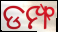
ଡମ୍ଫ